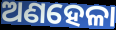
ଅଣହେଳା